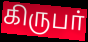
கிருபர்